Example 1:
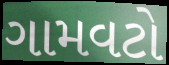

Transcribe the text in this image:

ગામવટો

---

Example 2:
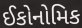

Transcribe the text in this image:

ઈકોનોમિક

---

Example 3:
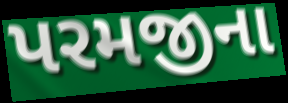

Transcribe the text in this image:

પરમજીના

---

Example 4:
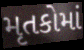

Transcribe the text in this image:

મૃતકોમાં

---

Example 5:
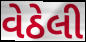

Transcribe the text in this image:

વેઠેલી